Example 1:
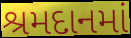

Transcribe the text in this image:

શ્રમદાનમાં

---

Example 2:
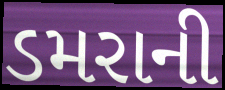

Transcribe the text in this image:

ડમરાની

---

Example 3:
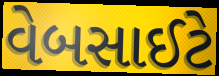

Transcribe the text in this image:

વેબસાઈટે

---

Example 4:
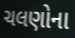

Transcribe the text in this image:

ચલણોના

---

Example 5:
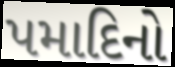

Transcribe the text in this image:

પમાદિનો